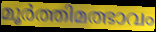
മൂർത്തിമത്ഭാവം